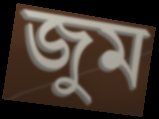
জুম